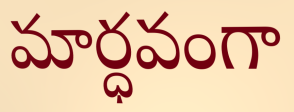
మార్ధవంగా